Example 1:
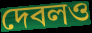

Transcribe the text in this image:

দেবলও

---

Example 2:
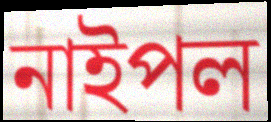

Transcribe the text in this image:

নাইপল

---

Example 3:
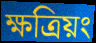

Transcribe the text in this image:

ক্ষত্রিয়ং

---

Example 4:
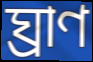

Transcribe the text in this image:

ঘ্রাণ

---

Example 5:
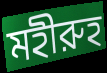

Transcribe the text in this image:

মহীরুহ